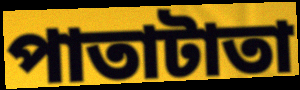
পাতাটাতা